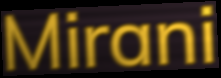
Mirani